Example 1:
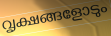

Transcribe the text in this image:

വൃക്ഷങ്ങളോടും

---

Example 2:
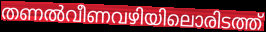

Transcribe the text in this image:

തണൽവീണവഴിയിലൊരിടത്ത്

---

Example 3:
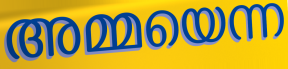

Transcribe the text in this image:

അമ്മയെന്ന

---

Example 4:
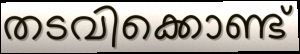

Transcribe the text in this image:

തടവിക്കൊണ്ട്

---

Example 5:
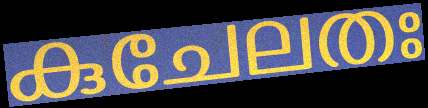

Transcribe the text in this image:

കുചേലതഃ